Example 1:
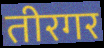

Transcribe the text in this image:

तीरगर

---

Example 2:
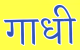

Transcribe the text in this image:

गाधी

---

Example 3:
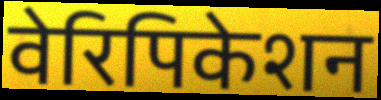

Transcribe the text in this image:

वेरिपिकेशन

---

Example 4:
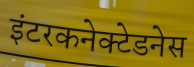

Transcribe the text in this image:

इंटरकनेक्टेडनेस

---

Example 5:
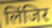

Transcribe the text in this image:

लिंजिर